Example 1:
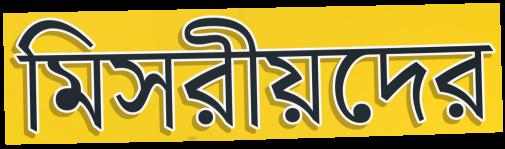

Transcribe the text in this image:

মিসরীয়দের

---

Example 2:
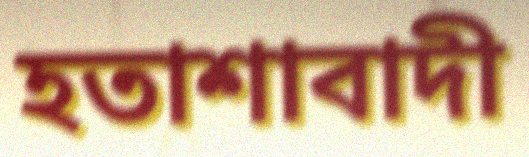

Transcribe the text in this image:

হতাশাবাদী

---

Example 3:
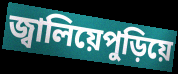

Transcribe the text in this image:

জ্বালিয়েপুড়িয়ে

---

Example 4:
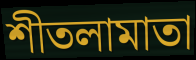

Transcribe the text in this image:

শীতলামাতা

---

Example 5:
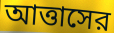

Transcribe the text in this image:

আত্তাসের